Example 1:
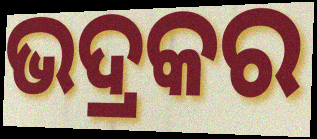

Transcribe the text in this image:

ଭଦ୍ରକର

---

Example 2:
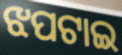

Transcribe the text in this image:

ଝପଟାଇ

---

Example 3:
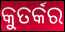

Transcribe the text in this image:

କୁତର୍କର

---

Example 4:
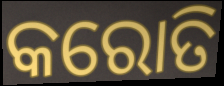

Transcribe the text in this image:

କରୋତି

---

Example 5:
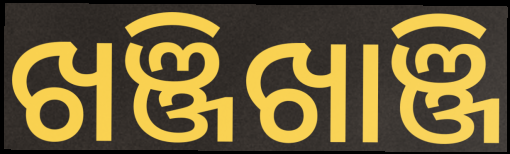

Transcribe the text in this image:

ଖଞ୍ଜିଖାଞ୍ଜି